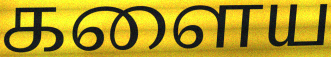
களைய